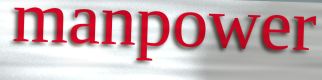
manpower